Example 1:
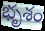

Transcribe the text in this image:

భృశం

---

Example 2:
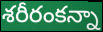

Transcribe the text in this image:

శరీరంకన్నా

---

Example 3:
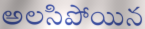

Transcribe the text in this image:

అలసిపోయిన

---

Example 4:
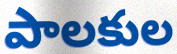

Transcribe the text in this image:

పాలకుల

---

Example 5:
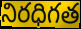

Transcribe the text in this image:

నిరధిగత